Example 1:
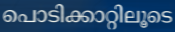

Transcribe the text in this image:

പൊടിക്കാറ്റിലൂടെ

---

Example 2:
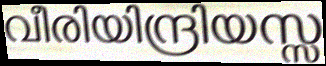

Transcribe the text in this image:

വീരിയിന്ദ്രിയസ്സ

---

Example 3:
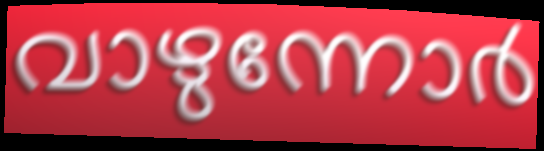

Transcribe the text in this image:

വാഴുന്നോർ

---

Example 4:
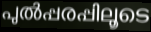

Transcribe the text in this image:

പുൽപ്പരപ്പിലൂടെ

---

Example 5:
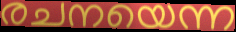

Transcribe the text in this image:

രചനയെന്ന